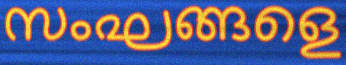
സംഘങ്ങളെ